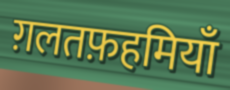
ग़लतफ़हमियाँ